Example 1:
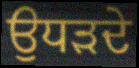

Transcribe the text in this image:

ਉਧੜਦੇ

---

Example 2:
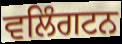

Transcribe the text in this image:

ਵਲਿੰਗਟਨ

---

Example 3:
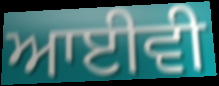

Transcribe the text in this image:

ਆਈਵੀ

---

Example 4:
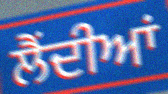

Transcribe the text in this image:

ਲੈਂਦੀਆਂ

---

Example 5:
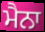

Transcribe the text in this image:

ਮੈਨਾ